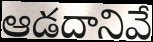
ఆడదానివే